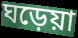
ঘড়েয়া